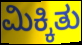
ಮಿಕ್ಕಿತು